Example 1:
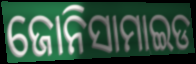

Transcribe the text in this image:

ଜୋନିସାମାଇଡ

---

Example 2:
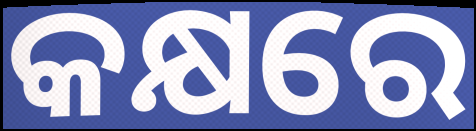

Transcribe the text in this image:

କକ୍ଷରେ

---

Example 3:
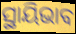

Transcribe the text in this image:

ସ୍ଥାୟିଭାବ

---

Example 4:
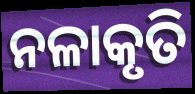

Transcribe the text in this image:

ନଳାକୃତି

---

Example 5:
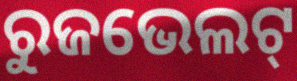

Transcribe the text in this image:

ରୁଜଭେଲଟ୍